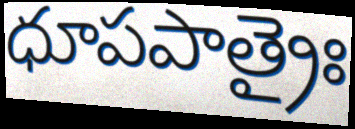
ధూపపాత్రైః